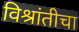
विश्रांतीचा